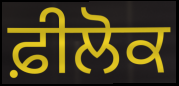
ਫ਼ੀਲੋਕ